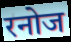
रनोज